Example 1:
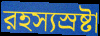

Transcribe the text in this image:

রহস্যস্রষ্টা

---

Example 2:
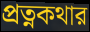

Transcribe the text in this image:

প্রত্নকথার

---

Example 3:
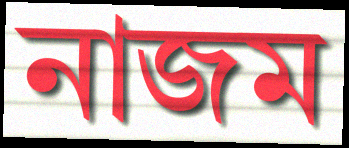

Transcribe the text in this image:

নাজম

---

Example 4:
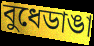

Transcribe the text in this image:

বুধেডাঙা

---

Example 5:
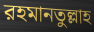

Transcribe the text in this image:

রহমানতুল্লাহ